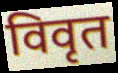
विवृत